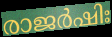
രാജർഷിഃ